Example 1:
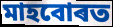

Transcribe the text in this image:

মাহবোৰত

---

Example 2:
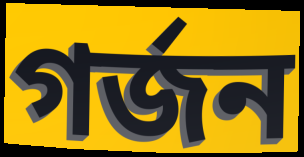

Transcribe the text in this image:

গৰ্জন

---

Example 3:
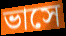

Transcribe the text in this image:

ভাসে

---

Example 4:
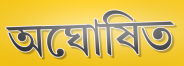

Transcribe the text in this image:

অঘোষিত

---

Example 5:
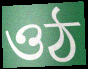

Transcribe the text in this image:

ওঠ